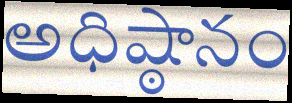
అధిష్ఠానం